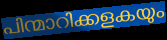
പിന്മാറിക്കളകയും